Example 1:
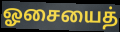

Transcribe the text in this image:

ஓசையைத்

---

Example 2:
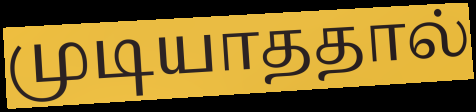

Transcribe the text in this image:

முடியாததால்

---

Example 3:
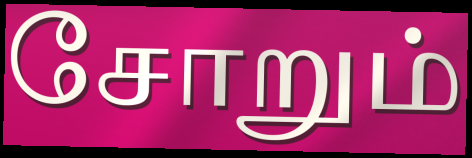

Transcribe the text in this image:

சோறும்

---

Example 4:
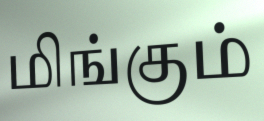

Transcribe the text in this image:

மிங்கும்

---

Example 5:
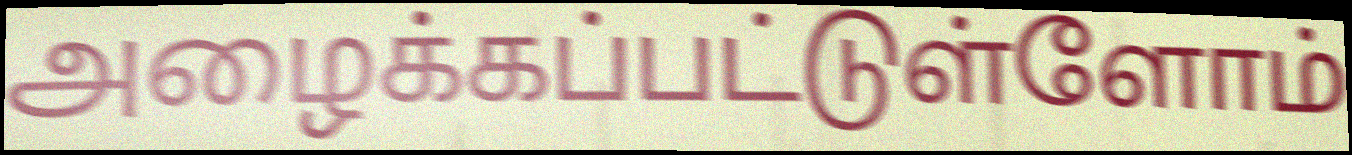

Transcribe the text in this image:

அழைக்கப்பட்டுள்ளோம்